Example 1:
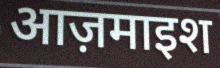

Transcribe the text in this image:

आज़माइश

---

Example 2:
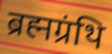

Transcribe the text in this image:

ब्रह्मग्रंथि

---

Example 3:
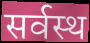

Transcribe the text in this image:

सर्वस्थ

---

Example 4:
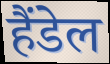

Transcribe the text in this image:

हैंडेल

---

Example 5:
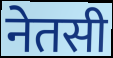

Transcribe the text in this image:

नेतसी